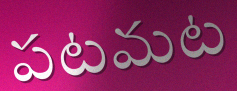
పటమట